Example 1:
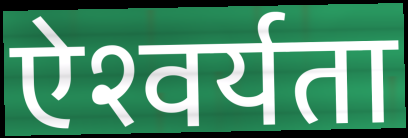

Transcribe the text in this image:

ऐश्वर्यता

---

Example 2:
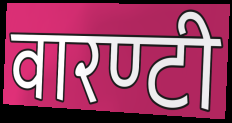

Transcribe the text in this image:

वारण्टी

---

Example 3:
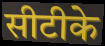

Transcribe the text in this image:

सीटीके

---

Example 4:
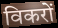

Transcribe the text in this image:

विकरों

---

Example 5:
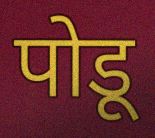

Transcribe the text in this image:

पोडू